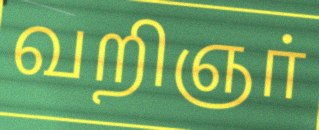
வறிஞர்